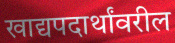
खाद्यपदार्थांवरील